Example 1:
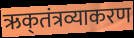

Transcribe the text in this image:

ऋक्‌तंत्रव्याकरण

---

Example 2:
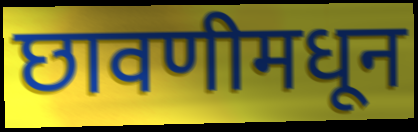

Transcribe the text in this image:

छावणीमधून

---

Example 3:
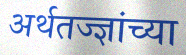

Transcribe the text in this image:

अर्थतज्ज्ञांच्या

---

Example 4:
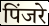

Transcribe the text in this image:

पिंजरे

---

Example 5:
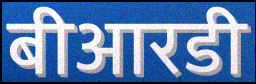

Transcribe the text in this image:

बीआरडी